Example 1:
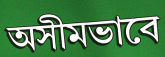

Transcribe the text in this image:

অসীমভাবে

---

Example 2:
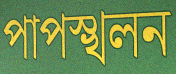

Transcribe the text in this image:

পাপস্খলন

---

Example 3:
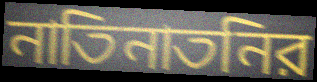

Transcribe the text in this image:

নাতিনাতনির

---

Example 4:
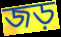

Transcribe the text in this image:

জড়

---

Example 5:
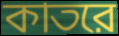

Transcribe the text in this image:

কাতরে